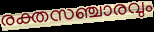
രക്തസഞ്ചാരവും